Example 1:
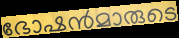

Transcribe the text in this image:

ഭോഷൻമാരുടെ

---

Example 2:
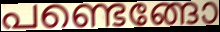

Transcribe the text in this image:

പണ്ടെങ്ങോ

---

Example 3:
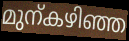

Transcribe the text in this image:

മുന്കഴിഞ്ഞ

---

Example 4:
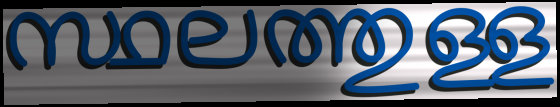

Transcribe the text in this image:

സ്ഥലത്തുള്ള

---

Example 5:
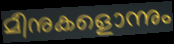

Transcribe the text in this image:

മീനുകളൊന്നും